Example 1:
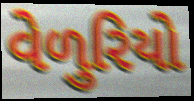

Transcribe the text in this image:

વેળુરિયો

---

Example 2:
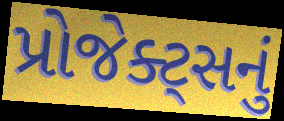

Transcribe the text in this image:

પ્રોજેક્ટ્સનું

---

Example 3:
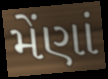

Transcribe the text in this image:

મેંણાં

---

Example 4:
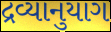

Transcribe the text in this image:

દ્રવ્યાનુયાગ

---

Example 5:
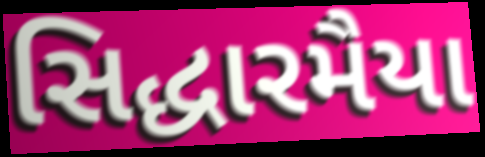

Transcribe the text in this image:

સિદ્ધારમૈયા